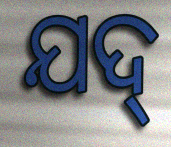
ଯଦ୍